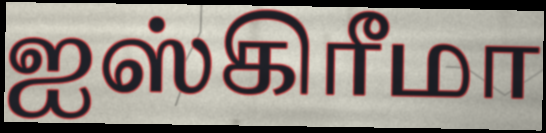
ஐஸ்கிரீமா